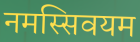
नमस्सिवयम